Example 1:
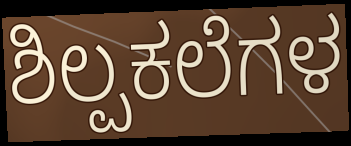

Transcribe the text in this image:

ಶಿಲ್ಪಕಲೆಗಳ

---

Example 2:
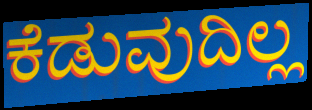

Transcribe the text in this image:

ಕೆಡುವುದಿಲ್ಲ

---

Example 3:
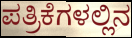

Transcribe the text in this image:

ಪತ್ರಿಕೆಗಳಲ್ಲಿನ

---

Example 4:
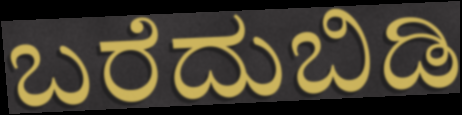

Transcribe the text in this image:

ಬರೆದುಬಿಡಿ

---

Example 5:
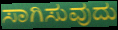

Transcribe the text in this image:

ಸಾಗಿಸುವುದು